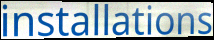
installations